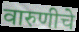
वारुणीचे